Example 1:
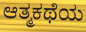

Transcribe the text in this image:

ಆತ್ಮಕಥೆಯ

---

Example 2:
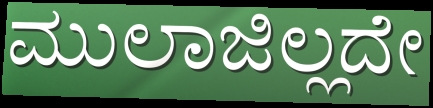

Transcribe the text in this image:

ಮುಲಾಜಿಲ್ಲದೇ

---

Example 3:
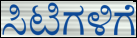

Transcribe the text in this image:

ಸಿಟಿಗಳಿಗೆ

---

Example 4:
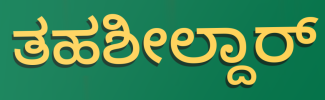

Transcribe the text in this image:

ತಹಶೀಲ್ದಾರ್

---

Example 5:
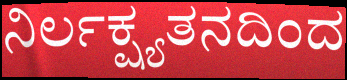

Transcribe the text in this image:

ನಿರ್ಲಕ್ಷ್ಯತನದಿಂದ